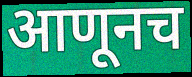
आणूनच